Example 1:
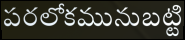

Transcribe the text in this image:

పరలోకమునుబట్టి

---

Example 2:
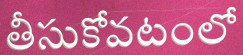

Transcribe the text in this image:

తీసుకోవటంలో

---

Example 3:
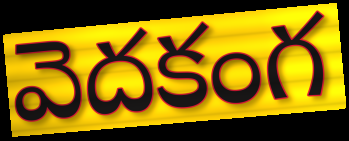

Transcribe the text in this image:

వెదకంగ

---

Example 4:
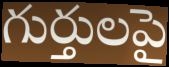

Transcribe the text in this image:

గుర్తులపై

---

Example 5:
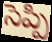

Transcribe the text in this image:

సెప్పి